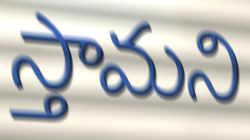
స్తామని